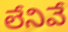
లేనివే